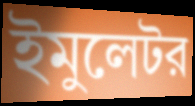
ইমুলেটর